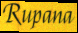
Rupana